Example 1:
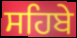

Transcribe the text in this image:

ਸਹਿਬੇ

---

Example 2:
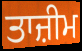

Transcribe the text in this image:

ਤਾਜ਼ੀਮ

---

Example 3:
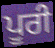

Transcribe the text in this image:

ਪੂਰੀ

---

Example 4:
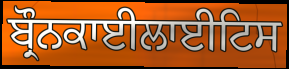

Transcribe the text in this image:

ਬ੍ਰੌਨਕਾਈਲਾਈਟਿਸ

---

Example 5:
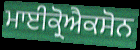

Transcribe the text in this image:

ਮਾਈਕ੍ਰੋਐਕਸੋਨ